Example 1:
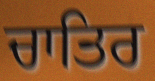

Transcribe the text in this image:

ਚਾਤਿਰ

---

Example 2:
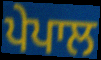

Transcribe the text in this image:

ਪੇਪਾਲ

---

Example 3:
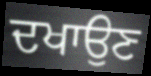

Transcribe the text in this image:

ਦਖਾਉਣ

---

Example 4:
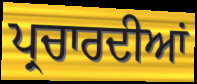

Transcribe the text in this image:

ਪ੍ਰਚਾਰਦੀਆਂ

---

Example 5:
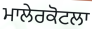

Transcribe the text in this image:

ਮਾਲੇਰਕੋਟਲਾ